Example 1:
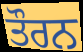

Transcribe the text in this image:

ਤੌਰਨ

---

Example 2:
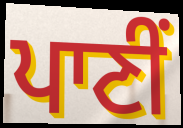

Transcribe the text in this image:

ਪਾਣੀਂ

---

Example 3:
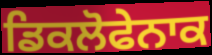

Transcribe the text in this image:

ਡਿਕਲੋਫੇਨਾਕ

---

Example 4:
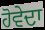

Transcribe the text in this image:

ਹੋਵੇਦਾ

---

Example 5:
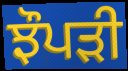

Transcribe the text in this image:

ਝੌਪੜੀ